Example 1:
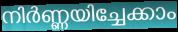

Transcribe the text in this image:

നിർണ്ണയിച്ചേക്കാം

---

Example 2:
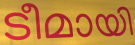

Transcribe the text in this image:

ടീമായി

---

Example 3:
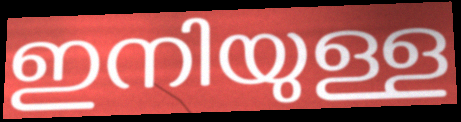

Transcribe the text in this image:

ഇനിയുള്ള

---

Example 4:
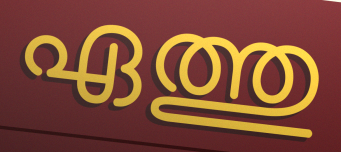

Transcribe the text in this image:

ഏത്തു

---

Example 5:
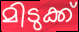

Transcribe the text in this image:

മിടുക്ക്